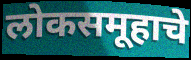
लोकसमूहाचे